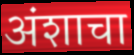
अंशाचा